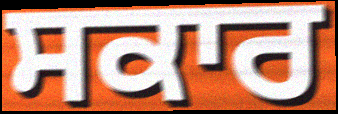
ਸਕਾਰ